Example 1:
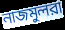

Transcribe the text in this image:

নাজমুলরা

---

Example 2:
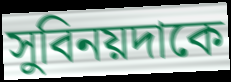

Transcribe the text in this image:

সুবিনয়দাকে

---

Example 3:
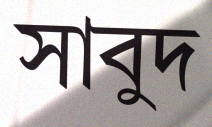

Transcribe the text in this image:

সাবুদ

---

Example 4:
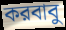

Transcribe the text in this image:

করবাবু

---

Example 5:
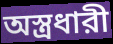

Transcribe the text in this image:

অস্ত্রধারী